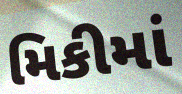
મિકીમાં